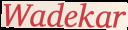
Wadekar